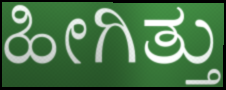
ಹೀಗಿತ್ತು